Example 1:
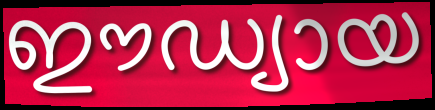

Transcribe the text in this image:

ഈഡ്യായ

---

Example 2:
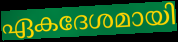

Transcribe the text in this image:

ഏകദേശമായി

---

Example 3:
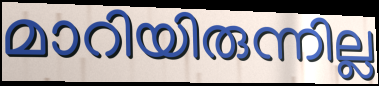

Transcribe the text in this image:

മാറിയിരുന്നില്ല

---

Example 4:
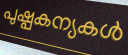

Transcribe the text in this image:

പുഷ്പകന്യകൾ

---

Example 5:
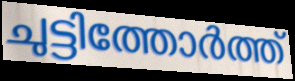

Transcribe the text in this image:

ചുട്ടിത്തോർത്ത്